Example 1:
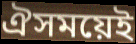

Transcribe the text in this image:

ঐসময়েই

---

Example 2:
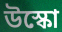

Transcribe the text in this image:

উস্কো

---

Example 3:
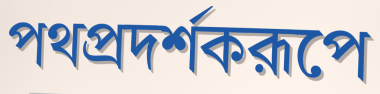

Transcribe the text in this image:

পথপ্রদর্শকরূপে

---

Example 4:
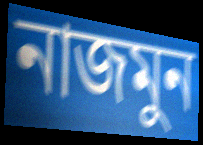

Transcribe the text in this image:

নাজমুন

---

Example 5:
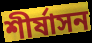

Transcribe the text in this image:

শীর্ষাসন